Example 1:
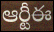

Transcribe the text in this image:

ఆర్టీఈ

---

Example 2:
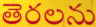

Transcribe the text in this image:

తెరలను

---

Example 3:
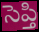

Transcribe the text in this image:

సెప్తి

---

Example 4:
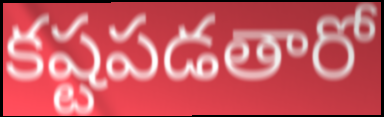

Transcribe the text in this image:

కష్టపడతారో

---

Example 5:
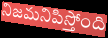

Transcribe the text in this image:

నిజమనిపిస్తోంది